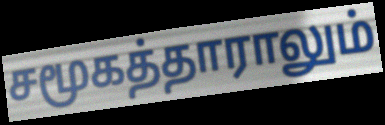
சமூகத்தாராலும்